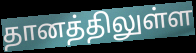
தானத்திலுள்ள